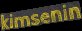
kimsenin